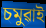
চমুৱাই